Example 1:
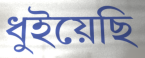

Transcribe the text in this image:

ধুইয়েছি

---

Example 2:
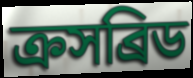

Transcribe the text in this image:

ক্রসব্রিড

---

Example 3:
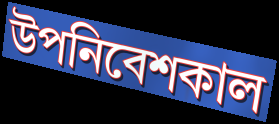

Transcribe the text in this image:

উপনিবেশকাল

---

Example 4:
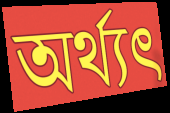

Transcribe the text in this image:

অর্থ্যৎ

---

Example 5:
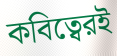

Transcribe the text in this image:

কবিত্বেরই